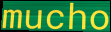
mucho